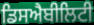
ਡਿਸਐਬੀਲਿਟੀ